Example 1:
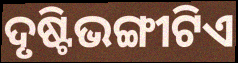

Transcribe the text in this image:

ଦୃଷ୍ଟିଭଙ୍ଗୀଟିଏ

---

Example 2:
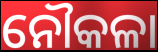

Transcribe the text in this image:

ନୌକଳା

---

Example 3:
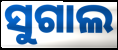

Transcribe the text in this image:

ସୁଗାଲ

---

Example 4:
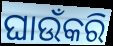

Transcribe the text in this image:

ଘାଉଁକରି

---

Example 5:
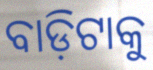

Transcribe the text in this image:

ବାଡ଼ିଟାକୁ